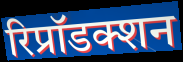
रिप्रॉडक्शन